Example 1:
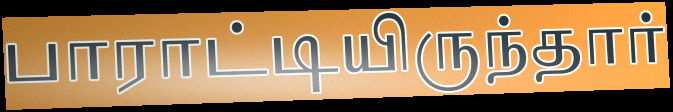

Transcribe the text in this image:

பாராட்டியிருந்தார்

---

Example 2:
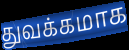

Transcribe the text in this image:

துவக்கமாக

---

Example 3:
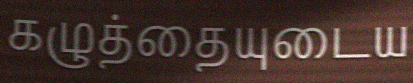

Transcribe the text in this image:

கழுத்தையுடைய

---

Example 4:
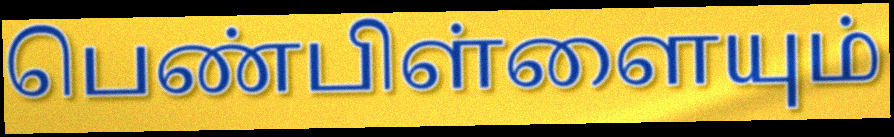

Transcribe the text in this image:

பெண்பிள்ளையும்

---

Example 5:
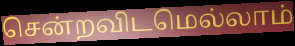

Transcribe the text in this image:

சென்றவிடமெல்லாம்